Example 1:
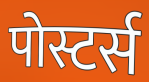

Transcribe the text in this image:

पोस्टर्स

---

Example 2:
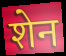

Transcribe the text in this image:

शेन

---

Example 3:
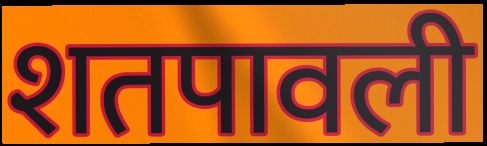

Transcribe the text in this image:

शतपावली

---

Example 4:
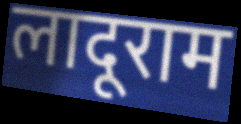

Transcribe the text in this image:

लादूराम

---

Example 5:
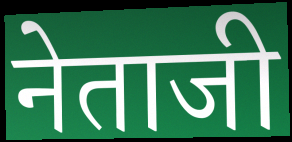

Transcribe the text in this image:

नेताजी